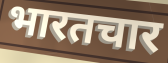
भारतचार